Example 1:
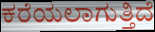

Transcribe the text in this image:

ಕರೆಯಲಾಗುತ್ತಿದೆ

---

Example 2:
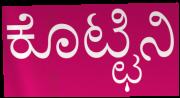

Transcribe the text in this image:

ಕೊಟ್ಟಿನಿ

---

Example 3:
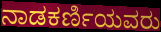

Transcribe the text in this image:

ನಾಡಕರ್ಣಿಯವರು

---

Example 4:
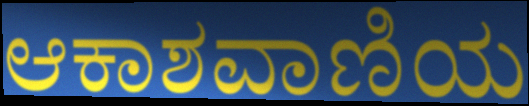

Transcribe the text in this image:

ಆಕಾಶವಾಣಿಯ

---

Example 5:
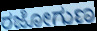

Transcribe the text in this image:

ರಜೋಗುಣ